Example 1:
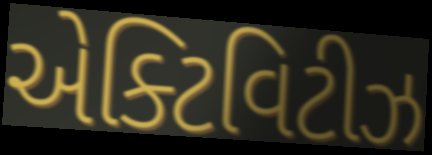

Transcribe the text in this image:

એક્ટિવિટીઝ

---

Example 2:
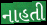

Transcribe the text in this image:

નાહતી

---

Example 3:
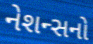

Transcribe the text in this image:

નેશન્સનો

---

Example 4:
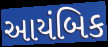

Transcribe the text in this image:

આયંબિક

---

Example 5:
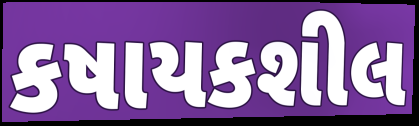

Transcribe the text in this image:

કષાયકશીલ